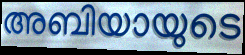
അബിയായുടെ